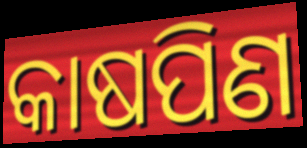
କାଷପିଣ